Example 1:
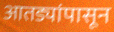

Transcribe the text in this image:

आतड्यांपासून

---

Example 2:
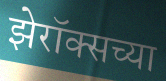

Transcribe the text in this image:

झेरॉक्सच्या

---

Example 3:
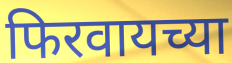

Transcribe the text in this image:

फिरवायच्या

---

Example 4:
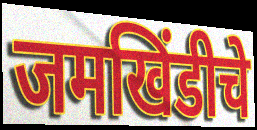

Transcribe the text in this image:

जमखिंडीचे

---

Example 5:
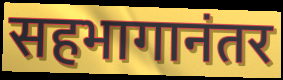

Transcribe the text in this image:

सहभागानंतर